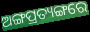
ଅଙ୍ଗପ୍ରତ୍ୟଙ୍ଗରେ